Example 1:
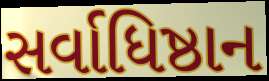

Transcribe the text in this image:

સર્વાધિષ્ઠાન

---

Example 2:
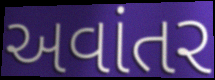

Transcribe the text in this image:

અવાંતર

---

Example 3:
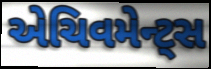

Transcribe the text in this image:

એચિવમેન્ટ્સ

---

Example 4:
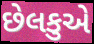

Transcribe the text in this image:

છેલકુએ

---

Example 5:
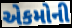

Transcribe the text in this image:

એકમોની